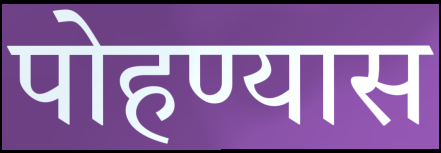
पोहण्यास